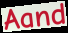
Aand